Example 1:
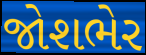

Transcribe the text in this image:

જોશભેર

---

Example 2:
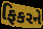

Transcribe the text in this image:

ફિકરને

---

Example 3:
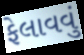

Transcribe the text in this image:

ફેલાવવું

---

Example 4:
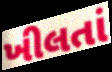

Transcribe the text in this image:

ખીલતાં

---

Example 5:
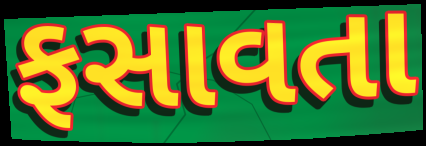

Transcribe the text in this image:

ફસાવતા